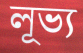
লূভ্য